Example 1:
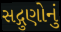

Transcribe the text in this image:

સદ્ગુણોનું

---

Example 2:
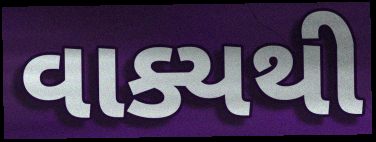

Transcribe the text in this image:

વાક્યથી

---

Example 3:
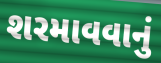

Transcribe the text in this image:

શરમાવવાનું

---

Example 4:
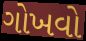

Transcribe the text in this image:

ગોખવો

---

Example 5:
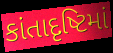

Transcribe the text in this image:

કાંતાદૃષ્ટિમાં